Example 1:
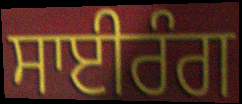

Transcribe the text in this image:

ਸਾਈਰੰਗ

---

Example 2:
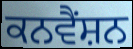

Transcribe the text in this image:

ਕਨਵੈੰਸ਼ਨ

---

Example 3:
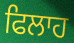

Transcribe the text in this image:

ਫਿਲਾਹ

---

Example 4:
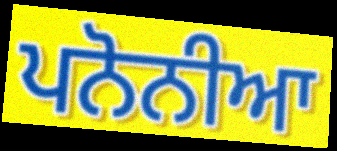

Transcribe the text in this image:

ਪਨੋਨੀਆ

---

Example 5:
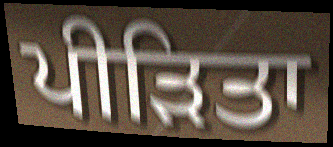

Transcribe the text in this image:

ਪੀੜਿਤਾ